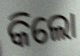
କିଲୋ